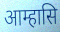
आम्हासि